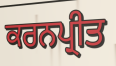
ਕਰਨਪ੍ਰੀਤ